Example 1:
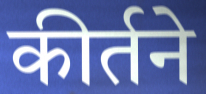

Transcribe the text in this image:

कीर्तने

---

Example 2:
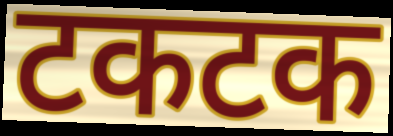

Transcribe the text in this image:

टकटक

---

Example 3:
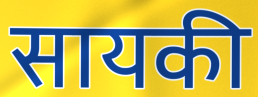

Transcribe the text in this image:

सायकी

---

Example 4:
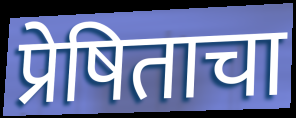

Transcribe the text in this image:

प्रेषिताचा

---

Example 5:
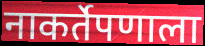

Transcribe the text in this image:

नाकर्तेपणाला